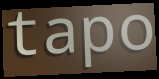
tapo